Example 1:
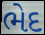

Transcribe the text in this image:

ભેદ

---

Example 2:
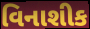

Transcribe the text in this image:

વિનાશીક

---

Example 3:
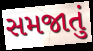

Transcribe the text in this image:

સમજાતું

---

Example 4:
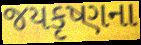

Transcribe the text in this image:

જયકૃષ્ણના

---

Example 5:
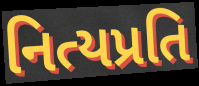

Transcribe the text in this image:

નિત્યપ્રતિ